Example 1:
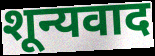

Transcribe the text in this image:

शून्यवाद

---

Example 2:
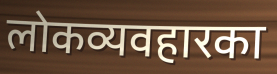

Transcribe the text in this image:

लोकव्यवहारका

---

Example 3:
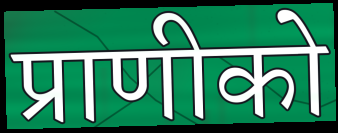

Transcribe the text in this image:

प्राणीको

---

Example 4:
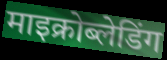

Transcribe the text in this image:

माइक्रोब्लेडिंग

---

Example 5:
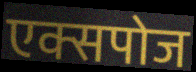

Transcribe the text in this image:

एक्सपोज